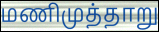
மணிமுத்தாறு